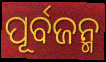
ପୂର୍ବଜନ୍ମ